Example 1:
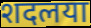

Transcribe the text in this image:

शदलया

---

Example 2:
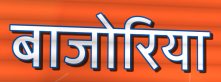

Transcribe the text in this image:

बाजोरिया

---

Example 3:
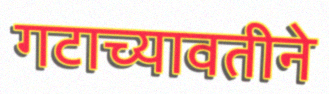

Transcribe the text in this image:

गटाच्यावतीने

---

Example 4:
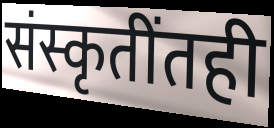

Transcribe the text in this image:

संस्कृतींतही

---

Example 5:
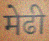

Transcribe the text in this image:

मेढी